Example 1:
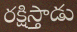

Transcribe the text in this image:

రక్షిస్తాడు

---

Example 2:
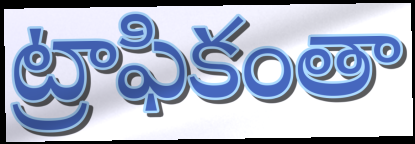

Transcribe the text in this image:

ట్రాఫికంతా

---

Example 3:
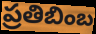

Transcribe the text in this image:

ప్రతిబింబ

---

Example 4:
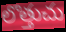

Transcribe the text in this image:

లొత్తుచు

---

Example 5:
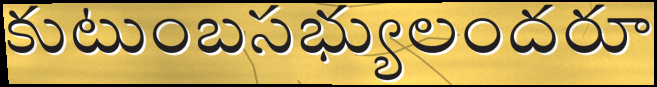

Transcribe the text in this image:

కుటుంబసభ్యులందరూ